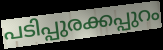
പടിപ്പുരക്കപ്പുറം